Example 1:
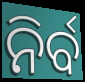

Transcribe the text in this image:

ନିର୍ବ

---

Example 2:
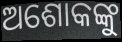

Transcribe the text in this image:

ଅଶୋକଙ୍କୁ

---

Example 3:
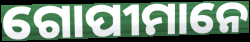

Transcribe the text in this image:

ଗୋପୀମାନେ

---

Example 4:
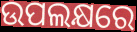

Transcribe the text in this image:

ଉପଲକ୍ଷରେ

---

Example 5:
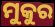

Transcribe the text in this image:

ମୁକୁର